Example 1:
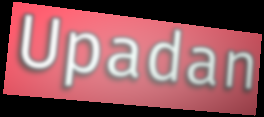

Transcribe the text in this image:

Upadan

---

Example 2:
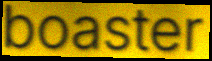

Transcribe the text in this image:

boaster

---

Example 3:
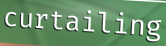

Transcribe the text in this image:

curtailing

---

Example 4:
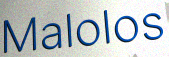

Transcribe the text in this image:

Malolos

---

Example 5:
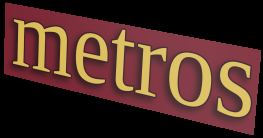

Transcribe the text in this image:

metros